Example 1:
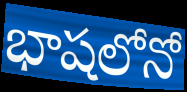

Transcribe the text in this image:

భాషలోనో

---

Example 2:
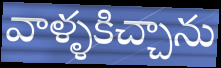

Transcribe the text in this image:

వాళ్ళకిచ్చాను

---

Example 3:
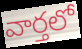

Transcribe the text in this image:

వార్తలో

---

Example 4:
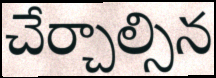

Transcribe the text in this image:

చేర్చాల్సిన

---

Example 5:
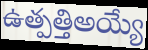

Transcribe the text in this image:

ఉత్పత్తిఅయ్యే